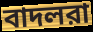
বাদলরা